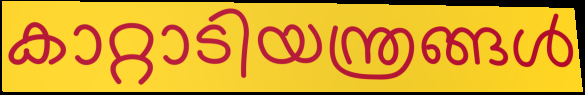
കാറ്റാടിയന്ത്രങ്ങൾ